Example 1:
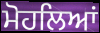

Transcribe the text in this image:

ਮੋਹਲਿਆਂ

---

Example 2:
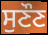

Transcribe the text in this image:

ਸੁਣੌਣ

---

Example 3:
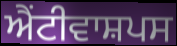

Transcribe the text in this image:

ਐਂਟੀਵਾਸ਼ਪਸ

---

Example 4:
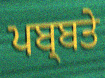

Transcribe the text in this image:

ਪਬ੍ਬਤੇ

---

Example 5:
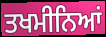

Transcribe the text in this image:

ਤਖਮੀਨਿਆਂ